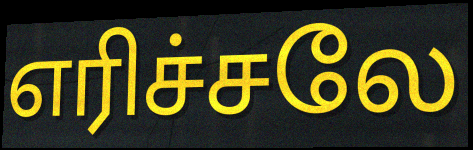
எரிச்சலே